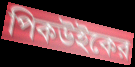
পিকউইকের